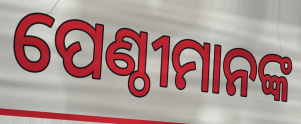
ପେଣ୍ଠୀମାନଙ୍କ